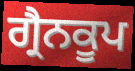
ਗ੍ਰੈਨਕੂਪ